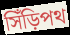
সিঁড়িপথ